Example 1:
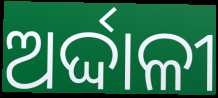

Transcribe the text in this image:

ଅର୍ଦ୍ଦାଳୀ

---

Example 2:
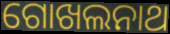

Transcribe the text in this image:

ଗୋଖଲନାଥ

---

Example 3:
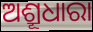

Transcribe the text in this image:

ଅଶ୍ରୂଧାରା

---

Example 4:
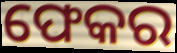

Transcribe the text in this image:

ଫେକର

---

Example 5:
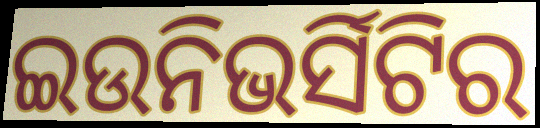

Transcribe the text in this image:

ଇଉନିଭର୍ସିଟିର